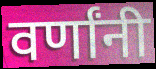
वर्णांनी